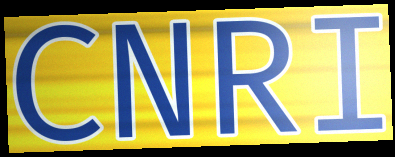
CNRI